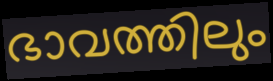
ഭാവത്തിലും